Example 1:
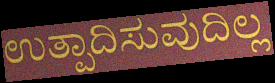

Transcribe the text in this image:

ಉತ್ಪಾದಿಸುವುದಿಲ್ಲ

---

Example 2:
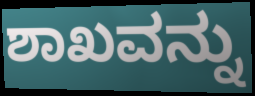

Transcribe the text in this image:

ಶಾಖವನ್ನು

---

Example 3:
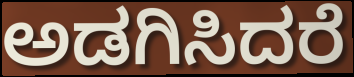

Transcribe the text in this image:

ಅಡಗಿಸಿದರೆ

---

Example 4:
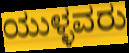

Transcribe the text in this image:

ಯುಳ್ಳವರು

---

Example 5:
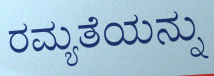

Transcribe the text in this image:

ರಮ್ಯತೆಯನ್ನು